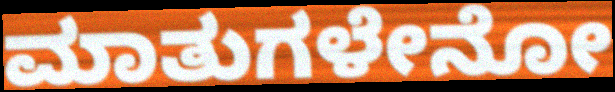
ಮಾತುಗಳೇನೋ